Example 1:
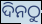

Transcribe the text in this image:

ଦିନଠୁ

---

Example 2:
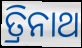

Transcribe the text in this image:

ତ୍ରିନାଥ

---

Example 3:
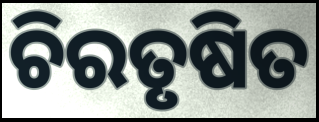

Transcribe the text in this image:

ଚିରତୃଷିତ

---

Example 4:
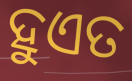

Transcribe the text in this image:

ହୁଏତ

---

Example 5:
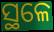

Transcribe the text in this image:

ସ୍ଥଳେ